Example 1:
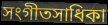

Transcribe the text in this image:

সংগীতসাধিকা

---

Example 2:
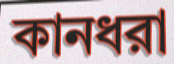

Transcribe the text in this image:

কানধরা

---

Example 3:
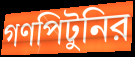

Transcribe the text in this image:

গণপিটুনির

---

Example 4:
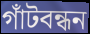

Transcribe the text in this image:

গাঁটবন্ধন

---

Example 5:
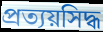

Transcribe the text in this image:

প্রত্যয়সিদ্ধ